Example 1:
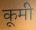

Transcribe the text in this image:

कूमी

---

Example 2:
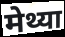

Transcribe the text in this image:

मेथ्या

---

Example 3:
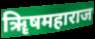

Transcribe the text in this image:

ॠिषमहाराज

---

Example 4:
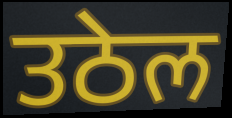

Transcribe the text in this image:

उठेल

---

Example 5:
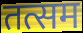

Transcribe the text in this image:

तत्सम